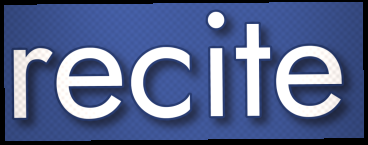
recite